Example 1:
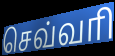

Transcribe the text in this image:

செவ்வரி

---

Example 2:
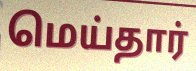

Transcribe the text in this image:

மெய்தார்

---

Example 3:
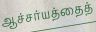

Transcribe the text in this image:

ஆச்சர்யத்தைத்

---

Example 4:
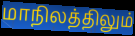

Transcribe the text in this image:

மாநிலத்திலும்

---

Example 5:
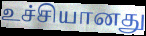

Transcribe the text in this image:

உச்சியானது